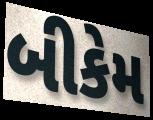
બીકેમ